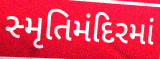
સ્મૃતિમંદિરમાં